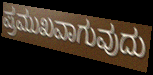
ಪ್ರಮುಖವಾಗುವುದು